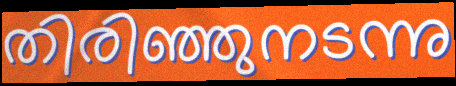
തിരിഞ്ഞുനടന്നു